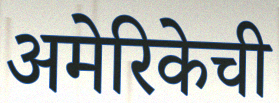
अमेरिकेची